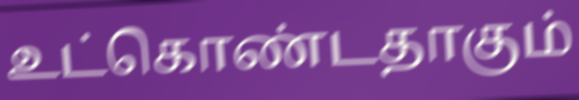
உட்கொண்டதாகும்